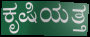
ಕೃಷಿಯತ್ತ